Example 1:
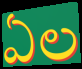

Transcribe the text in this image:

ఏల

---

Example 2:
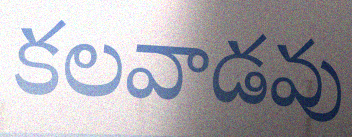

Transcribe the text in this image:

కలవాడవు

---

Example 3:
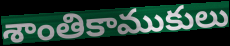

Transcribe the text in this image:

శాంతికాముకులు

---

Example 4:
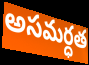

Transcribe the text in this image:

అసమర్ధత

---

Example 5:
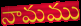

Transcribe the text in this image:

నామము